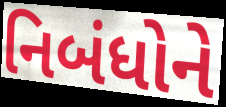
નિબંધોને